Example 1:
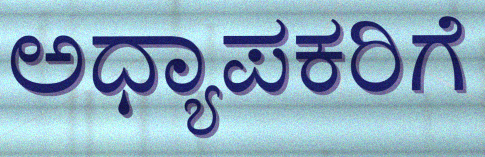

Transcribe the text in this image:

ಅಧ್ಯಾಪಕರಿಗೆ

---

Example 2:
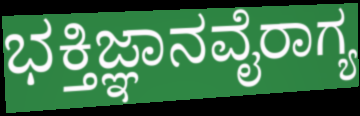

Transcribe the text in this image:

ಭಕ್ತಿಜ್ಞಾನವೈರಾಗ್ಯ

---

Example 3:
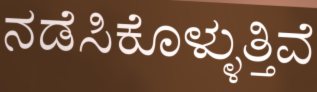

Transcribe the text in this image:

ನಡೆಸಿಕೊಳ್ಳುತ್ತಿವೆ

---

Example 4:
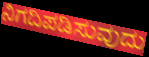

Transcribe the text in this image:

ನಿಗದಿಪಡಿಸುವುದು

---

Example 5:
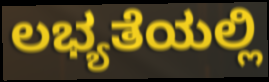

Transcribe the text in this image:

ಲಭ್ಯತೆಯಲ್ಲಿ